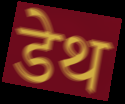
डेथ